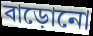
বাড়োনো